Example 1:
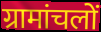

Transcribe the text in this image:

ग्रामांचलों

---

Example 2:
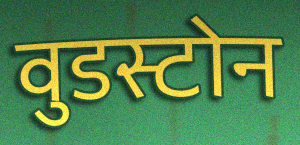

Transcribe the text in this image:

वुडस्टोन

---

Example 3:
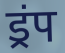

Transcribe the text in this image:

ड्रंप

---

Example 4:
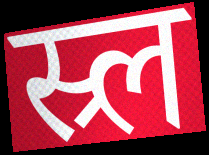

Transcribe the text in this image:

स्र्ल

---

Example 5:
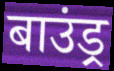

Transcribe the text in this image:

बाउंड्र